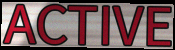
ACTIVE